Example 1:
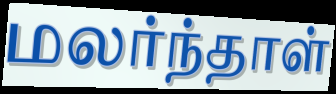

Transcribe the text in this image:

மலர்ந்தாள்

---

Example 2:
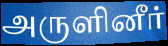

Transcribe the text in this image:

அருளினீர்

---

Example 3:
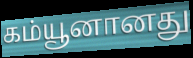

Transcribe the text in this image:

கம்யூனானது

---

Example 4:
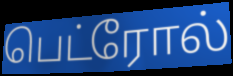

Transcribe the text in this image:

பெட்ரோல்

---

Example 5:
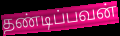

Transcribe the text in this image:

தண்டிப்பவன்